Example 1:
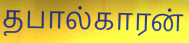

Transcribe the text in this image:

தபால்காரன்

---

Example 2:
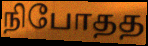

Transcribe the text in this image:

நிபோதத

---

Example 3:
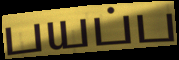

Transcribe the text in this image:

பயப்ப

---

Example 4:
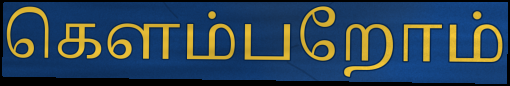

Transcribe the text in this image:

கெளம்பறோம்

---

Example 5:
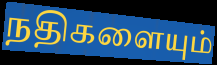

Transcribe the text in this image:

நதிகளையும்